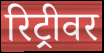
रिट्रीवर